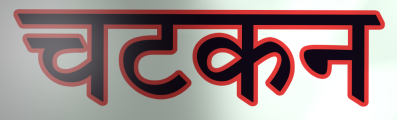
चटकन